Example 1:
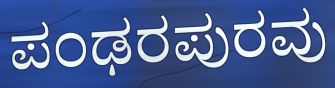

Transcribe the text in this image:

ಪಂಢರಪುರವು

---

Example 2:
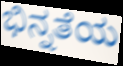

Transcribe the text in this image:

ಭಿನ್ನತೆಯ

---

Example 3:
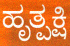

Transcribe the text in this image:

ಹೃತ್ಪಕ್ಷಿ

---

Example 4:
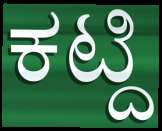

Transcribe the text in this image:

ಕಟ್ದಿ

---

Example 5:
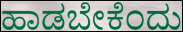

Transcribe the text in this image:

ಹಾಡಬೇಕೆಂದು